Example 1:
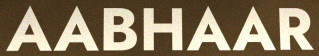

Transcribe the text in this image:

AABHAAR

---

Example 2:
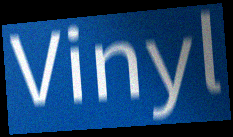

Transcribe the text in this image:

Vinyl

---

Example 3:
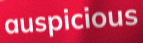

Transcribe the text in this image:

auspicious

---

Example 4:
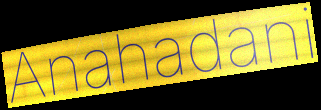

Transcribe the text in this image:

Anahadani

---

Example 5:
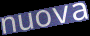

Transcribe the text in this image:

nuova